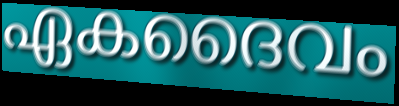
ഏകദൈവം